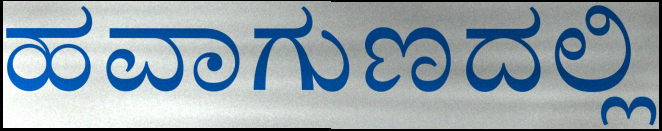
ಹವಾಗುಣದಲ್ಲಿ